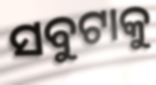
ସବୁଟାକୁ